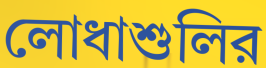
লোধাশুলির